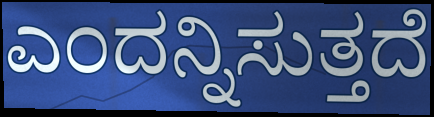
ಎಂದನ್ನಿಸುತ್ತದೆ